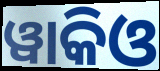
ୱାକିଓ